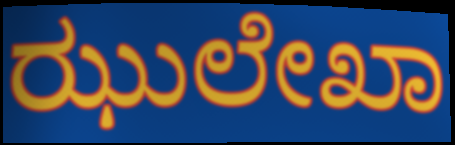
ಝುಲೇಖಾ